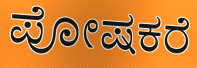
ಪೋಷಕರೆ